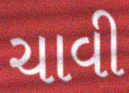
ચાવી